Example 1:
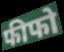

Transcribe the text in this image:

फीफो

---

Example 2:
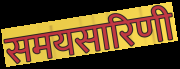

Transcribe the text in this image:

समयसारिणी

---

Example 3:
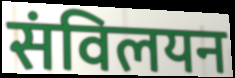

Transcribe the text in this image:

संविलयन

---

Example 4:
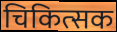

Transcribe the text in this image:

चिकित्‍सक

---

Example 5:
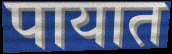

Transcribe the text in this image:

पायात